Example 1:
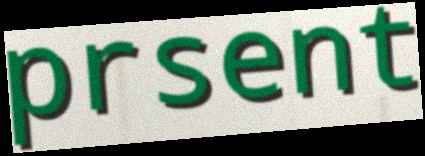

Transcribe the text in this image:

prsent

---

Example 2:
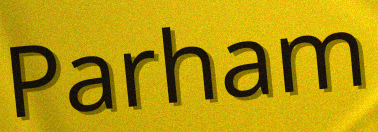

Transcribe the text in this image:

Parham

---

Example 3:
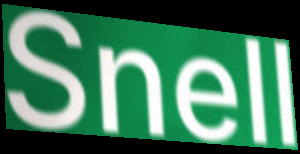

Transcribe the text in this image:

Snell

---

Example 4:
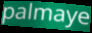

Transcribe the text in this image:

palmaye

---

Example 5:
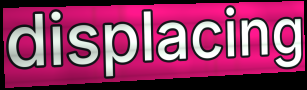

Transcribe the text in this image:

displacing